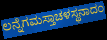
ಲನ್ನೆಗಮಸ್ತಾಚಳಸ್ಥನಾದಂ